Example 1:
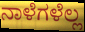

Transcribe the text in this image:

ನಾಳೆಗಳೆಲ್ಲ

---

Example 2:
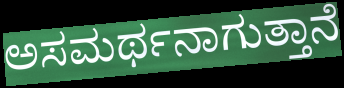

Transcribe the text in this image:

ಅಸಮರ್ಥನಾಗುತ್ತಾನೆ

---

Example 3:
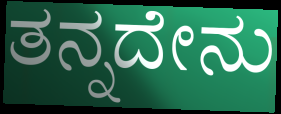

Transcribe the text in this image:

ತನ್ನದೇನು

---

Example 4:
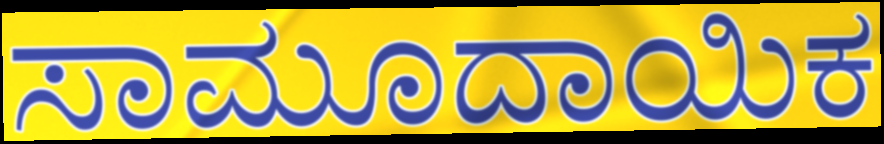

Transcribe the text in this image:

ಸಾಮೂದಾಯಿಕ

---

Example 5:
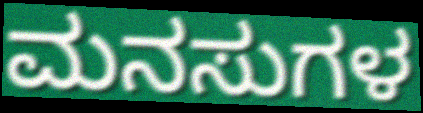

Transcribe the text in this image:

ಮನಸುಗಳ